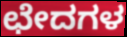
ಛೇದಗಳ